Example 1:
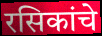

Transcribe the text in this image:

रसिकांचे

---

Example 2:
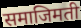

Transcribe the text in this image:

समाजिमती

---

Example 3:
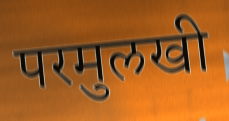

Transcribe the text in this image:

परमुलखी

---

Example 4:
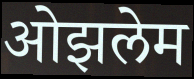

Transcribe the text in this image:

ओझलेम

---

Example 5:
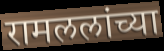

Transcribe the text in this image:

रामललांच्या